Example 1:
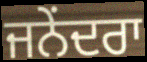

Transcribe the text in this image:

ਜਨੇਂਦਰਾ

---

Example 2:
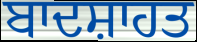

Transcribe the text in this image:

ਬਾਦਸ਼ਾਹਤ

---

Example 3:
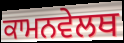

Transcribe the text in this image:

ਕਾਮਨਵੇਲਥ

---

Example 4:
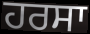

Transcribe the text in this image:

ਹਰਸਾ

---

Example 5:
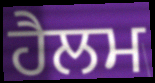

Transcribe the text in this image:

ਹੈਲਮ